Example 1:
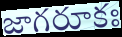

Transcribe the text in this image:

జాగరూకః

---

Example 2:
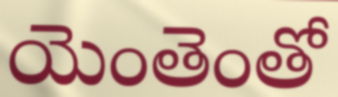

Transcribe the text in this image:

యెంతెంతో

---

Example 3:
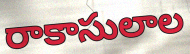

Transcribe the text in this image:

రాకాసులాల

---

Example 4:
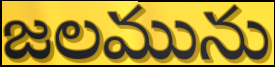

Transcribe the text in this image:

జలమును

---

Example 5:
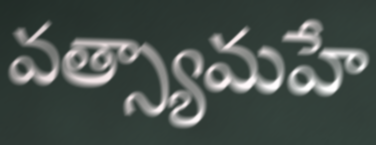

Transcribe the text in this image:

వత్స్యామహే